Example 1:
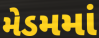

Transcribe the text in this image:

મેડમમાં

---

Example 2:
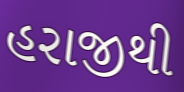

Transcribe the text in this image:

હરાજીથી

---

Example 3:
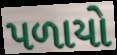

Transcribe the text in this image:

પળાયો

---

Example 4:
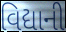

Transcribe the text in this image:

વિદ્યાની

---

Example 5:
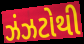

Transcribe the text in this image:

ઝંઝટોથી